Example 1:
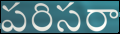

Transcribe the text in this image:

పరిసరా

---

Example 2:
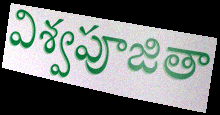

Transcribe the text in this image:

విశ్వపూజితా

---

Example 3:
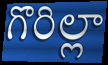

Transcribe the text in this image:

గొరిల్లా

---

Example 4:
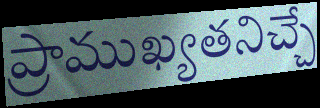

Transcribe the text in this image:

ప్రాముఖ్యతనిచ్చే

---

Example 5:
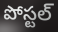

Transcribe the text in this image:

పోస్టల్